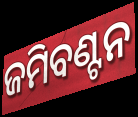
ଜମିବଣ୍ଟନ